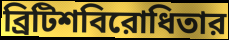
ব্রিটিশবিরোধিতার